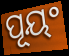
ପୂୟଂ